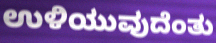
ಉಳಿಯುವುದೆಂತು